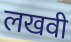
लखवी